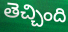
తెచ్చింది